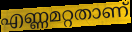
എണ്ണമറ്റതാണ്